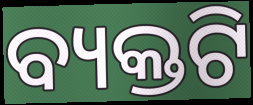
ବ୍ୟକ୍ତଟି